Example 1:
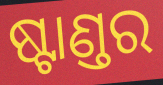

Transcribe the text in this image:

ଷ୍ଟାଣ୍ଡର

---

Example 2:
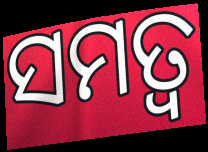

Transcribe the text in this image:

ସମତ୍ଵ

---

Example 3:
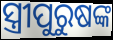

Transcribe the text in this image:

ସ୍ତ୍ରୀପୁରୁଷଙ୍କ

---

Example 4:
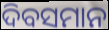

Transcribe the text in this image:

ଦିବସମାନ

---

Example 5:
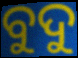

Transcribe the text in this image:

ବୁଦୁ